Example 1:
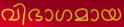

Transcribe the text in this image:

വിഭാഗമായ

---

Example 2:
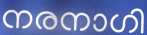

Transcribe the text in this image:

നരനാഗി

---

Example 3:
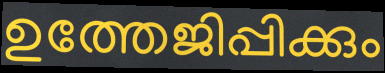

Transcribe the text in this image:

ഉത്തേജിപ്പിക്കും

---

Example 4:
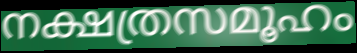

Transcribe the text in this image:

നക്ഷത്രസമൂഹം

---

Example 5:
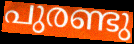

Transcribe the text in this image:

പുരണ്ടു